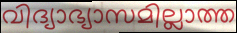
വിദ്യാഭ്യാസമില്ലാത്ത